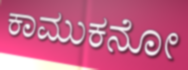
ಕಾಮುಕನೋ